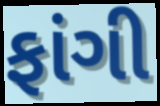
ફાંગી